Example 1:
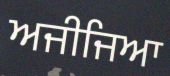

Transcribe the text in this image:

ਅਜੀਜਿਆ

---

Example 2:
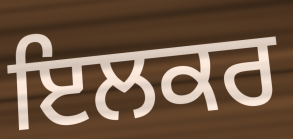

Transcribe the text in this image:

ਇਲਕਰ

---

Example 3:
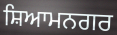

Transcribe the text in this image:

ਸ਼ਿਆਮਨਗਰ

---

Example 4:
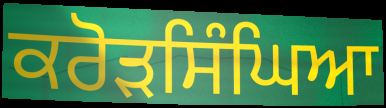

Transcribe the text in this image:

ਕਰੋੜਸਿੰਘਿਆ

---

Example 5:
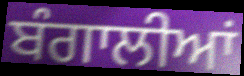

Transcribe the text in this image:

ਬੰਗਾਲੀਆਂ